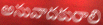
అనువాదకురాలి